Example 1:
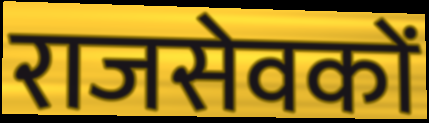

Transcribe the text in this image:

राजसेवकों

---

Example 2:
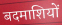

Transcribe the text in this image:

बदमाशियों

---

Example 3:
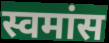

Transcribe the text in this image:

स्वमांस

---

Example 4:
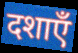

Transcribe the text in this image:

दशाएँ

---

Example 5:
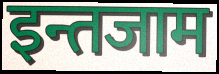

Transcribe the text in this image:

इन्तजाम